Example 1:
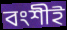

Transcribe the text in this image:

বংশীই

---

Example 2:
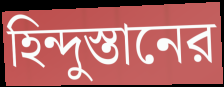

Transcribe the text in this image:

হিন্দুস্তানের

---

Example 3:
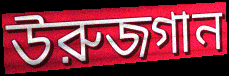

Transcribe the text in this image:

উরুজগান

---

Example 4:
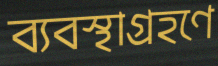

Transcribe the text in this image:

ব্যবস্থাগ্রহণে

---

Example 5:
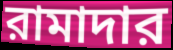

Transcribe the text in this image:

রামাদার